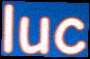
luc